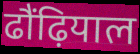
ढौंढ़ियाल